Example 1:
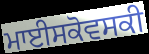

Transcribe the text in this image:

ਮਾਈਸਕੋਵਸਕੀ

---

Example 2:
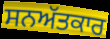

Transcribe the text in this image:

ਸਨਅੱਤਕਾਰ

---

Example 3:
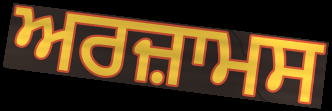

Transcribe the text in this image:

ਅਰਜ਼ਾਮਸ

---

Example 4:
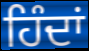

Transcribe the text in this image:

ਹਿੰਦਾਂ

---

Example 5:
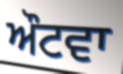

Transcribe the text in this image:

ਔਟਵਾ